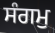
ਸੰਗਮੁ